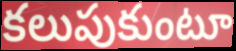
కలుపుకుంటూ